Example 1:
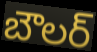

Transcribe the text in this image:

బౌలర్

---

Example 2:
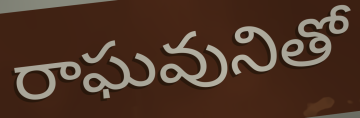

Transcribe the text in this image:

రాఘవునితో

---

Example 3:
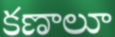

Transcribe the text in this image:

కణాలూ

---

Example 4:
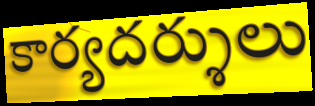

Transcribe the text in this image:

కార్యదర్శులు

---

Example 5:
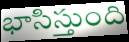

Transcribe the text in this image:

భాసిస్తుంది